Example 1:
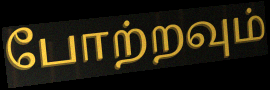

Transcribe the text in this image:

போற்றவும்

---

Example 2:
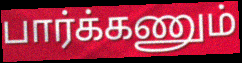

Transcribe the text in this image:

பார்க்கணும்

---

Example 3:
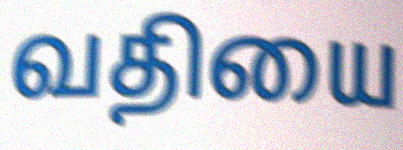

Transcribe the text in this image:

வதியை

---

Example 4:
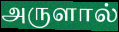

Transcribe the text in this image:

அருளால்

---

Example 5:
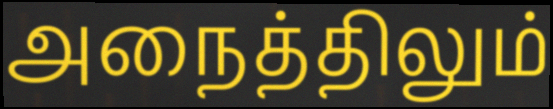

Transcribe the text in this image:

அநைத்திலும்